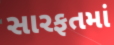
સારફતમાં